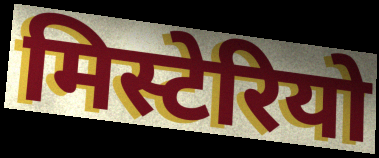
मिस्टेरियो